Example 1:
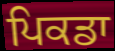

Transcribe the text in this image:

ਪਿਕਡਾ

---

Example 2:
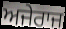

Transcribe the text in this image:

ਅਜੇਰਾਜ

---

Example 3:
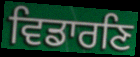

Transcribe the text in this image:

ਵਿਡਾਰਣਿ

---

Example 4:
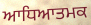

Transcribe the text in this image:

ਆਧਿਆਤਮਕ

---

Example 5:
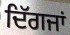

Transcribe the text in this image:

ਦਿੱਗਜਾਂ